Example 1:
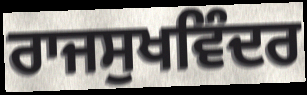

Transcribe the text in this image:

ਰਾਜਸੁਖਵਿੰਦਰ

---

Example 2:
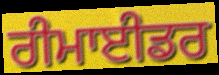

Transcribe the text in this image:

ਰੀਮਾਈਡਰ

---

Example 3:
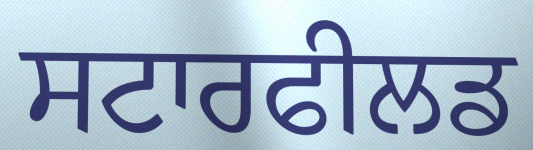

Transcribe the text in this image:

ਸਟਾਰਫੀਲਡ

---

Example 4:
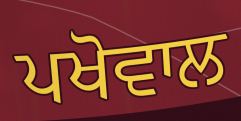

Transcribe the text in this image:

ਪਖੋਵਾਲ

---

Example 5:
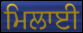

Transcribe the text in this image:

ਮਿਲਾਈ